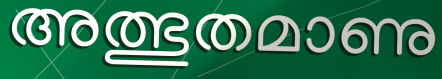
അത്ഭുതമാണു